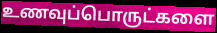
உணவுப்பொருட்களை